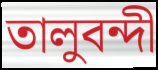
তালুবন্দী